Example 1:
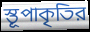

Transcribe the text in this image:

স্তূপাকৃতির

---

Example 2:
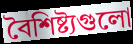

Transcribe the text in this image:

বৈশিষ্ট্যগুলো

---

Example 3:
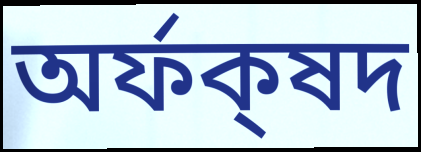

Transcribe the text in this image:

অর্ফক্‌ষদ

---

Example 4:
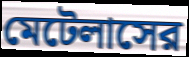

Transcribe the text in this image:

মেটেলাসের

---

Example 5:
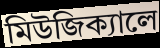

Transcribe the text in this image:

মিউজিক্যালে